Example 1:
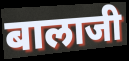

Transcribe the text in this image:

बालाजी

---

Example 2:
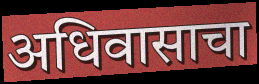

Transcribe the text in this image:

अधिवासाचा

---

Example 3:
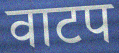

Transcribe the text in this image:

वाटप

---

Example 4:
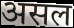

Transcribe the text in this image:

असल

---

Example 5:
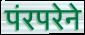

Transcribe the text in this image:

पंरपरेने